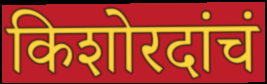
किशोरदांचं